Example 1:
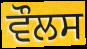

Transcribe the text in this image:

ਵੌਲਸ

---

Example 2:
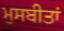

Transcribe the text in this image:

ਮੁਸਬੀਤਾਂ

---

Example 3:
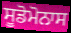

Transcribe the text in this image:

ਸੂਡੋਮੋਨਾਸ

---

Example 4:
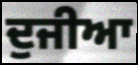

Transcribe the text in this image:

ਦੁਜੀਆ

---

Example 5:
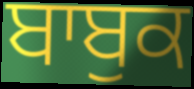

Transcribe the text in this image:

ਬਾਬੁਕ